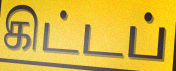
கிட்டப்